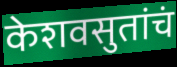
केशवसुतांचं